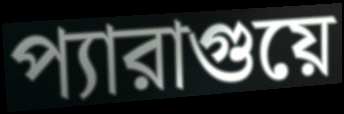
প্যারাগুয়ে